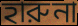
হারুনা